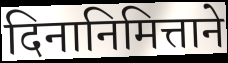
दिनानिमित्ताने